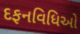
દફનવિધિઓ